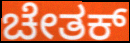
ಚೇತಕ್